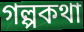
গল্পকথা